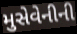
મુસેવેનીની